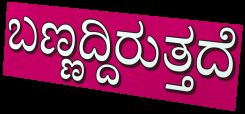
ಬಣ್ಣದ್ದಿರುತ್ತದೆ